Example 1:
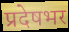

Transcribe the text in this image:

प्रदेषभर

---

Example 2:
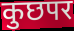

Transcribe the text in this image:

कुछपर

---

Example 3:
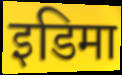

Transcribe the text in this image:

इडिमा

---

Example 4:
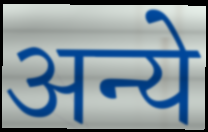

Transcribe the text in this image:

अन्ये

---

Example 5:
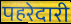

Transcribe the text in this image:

पहरेदारी